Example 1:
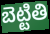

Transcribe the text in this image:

బెట్టితి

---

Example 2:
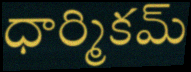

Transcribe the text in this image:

ధార్మికమ్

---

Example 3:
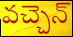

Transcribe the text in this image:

వచ్చెన్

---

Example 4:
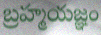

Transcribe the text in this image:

బ్రహ్మయజ్ఞం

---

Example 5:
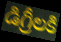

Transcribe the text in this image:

డిగ్రీలకి